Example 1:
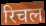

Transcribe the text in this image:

रिचल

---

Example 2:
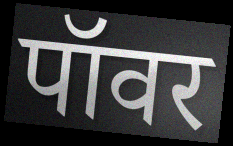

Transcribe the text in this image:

पॉवर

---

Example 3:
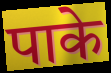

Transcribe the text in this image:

पाके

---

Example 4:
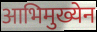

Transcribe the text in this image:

आभिमुख्येन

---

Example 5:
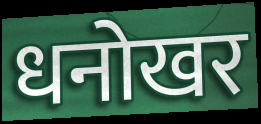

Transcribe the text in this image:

धनोखर